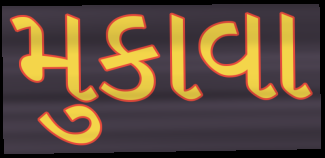
મુકાવા